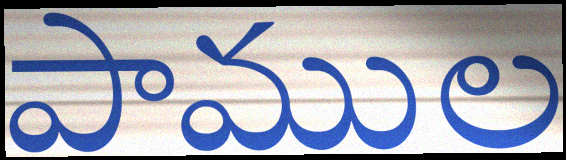
పాముల